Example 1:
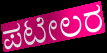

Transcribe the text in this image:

ಪಟೇಲರ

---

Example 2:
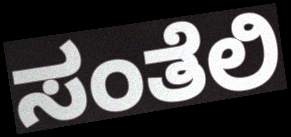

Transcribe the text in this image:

ಸಂತೆಲಿ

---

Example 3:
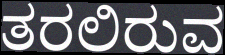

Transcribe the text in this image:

ತರಲಿರುವ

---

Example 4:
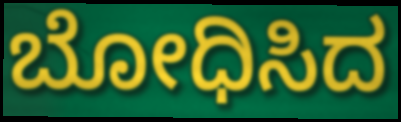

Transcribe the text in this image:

ಬೋಧಿಸಿದ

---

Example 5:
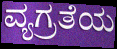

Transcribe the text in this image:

ವ್ಯಗ್ರತೆಯ